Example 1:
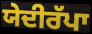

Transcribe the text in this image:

ਯੇਦੀਰੱਪਾ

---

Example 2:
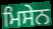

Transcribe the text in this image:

ਮਿਸੇਨ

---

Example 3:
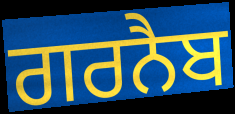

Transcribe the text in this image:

ਗਰਨੈਬ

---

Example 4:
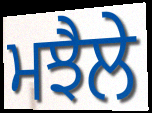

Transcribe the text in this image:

ਮਝੈਲੇ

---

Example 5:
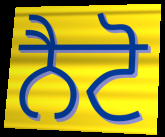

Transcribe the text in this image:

ਨੈਟੋ